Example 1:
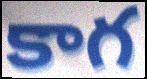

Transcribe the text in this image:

కాగ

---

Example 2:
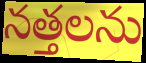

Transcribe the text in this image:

నత్తలను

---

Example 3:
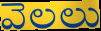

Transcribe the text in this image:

వెలలు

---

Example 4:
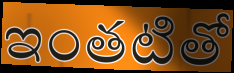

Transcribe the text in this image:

ఇంతటితో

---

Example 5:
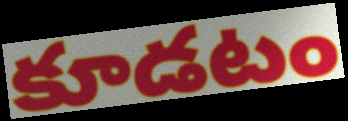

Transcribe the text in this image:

కూడటం